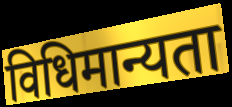
विधिमान्यता